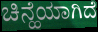
ಚಿನ್ಹೆಯಾಗಿದೆ